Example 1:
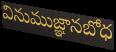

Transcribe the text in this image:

వినుముజ్ఞానబోధ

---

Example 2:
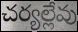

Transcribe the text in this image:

చర్యల్లేవు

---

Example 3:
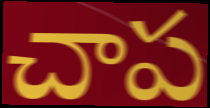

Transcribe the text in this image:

చాప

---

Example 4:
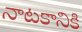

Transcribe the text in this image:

నాటకానికి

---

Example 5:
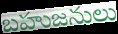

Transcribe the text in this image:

బహుజనులు